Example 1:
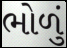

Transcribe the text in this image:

ભોળું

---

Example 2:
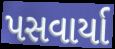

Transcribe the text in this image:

પસવાર્યા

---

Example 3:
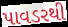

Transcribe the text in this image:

પાવડરથી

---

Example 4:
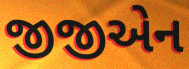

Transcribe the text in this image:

જીજીએન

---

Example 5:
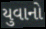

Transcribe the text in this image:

યુવાનો